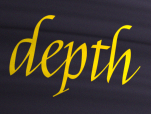
depth